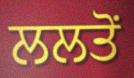
ਲਲਤੋਂ